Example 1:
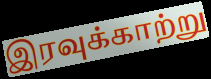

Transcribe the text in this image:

இரவுக்காற்று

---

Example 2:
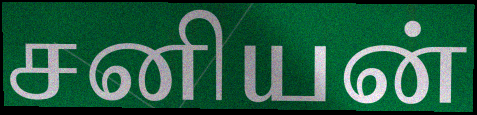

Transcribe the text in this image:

சனியன்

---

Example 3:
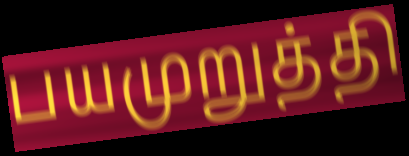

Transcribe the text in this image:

பயமுறுத்தி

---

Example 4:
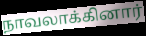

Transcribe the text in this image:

நாவலாக்கினார்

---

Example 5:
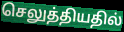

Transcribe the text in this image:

செலுத்தியதில்